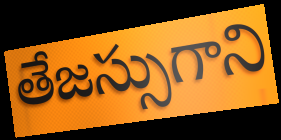
తేజస్సుగాని